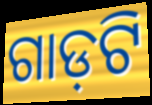
ଗାଡ଼ଟି